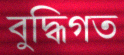
বুদ্ধিগত